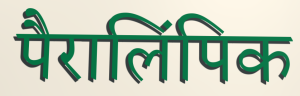
पैरालिंपिक